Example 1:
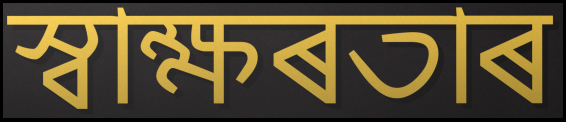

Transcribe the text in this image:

স্বাক্ষৰতাৰ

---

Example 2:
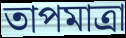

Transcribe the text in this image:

তাপমাত্ৰা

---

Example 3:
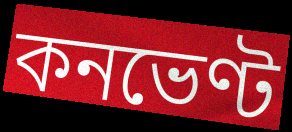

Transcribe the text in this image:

কনভেণ্ট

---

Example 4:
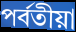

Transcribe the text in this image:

পৰ্বতীয়া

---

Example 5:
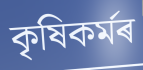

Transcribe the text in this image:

কৃষিকৰ্মৰ